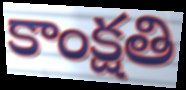
కాంక్షతి